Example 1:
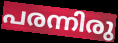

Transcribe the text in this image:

പരന്നിരു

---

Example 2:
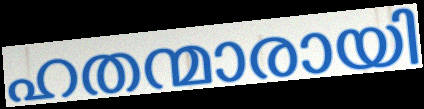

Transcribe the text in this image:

ഹതന്മാരായി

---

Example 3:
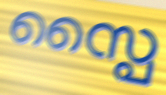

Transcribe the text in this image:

സ്പൈ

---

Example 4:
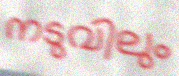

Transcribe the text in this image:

നടുവിലും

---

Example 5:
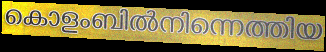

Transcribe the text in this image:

കൊളംബിൽനിന്നെത്തിയ